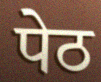
पेठ